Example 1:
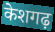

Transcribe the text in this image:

केशगढ़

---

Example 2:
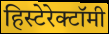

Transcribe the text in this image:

हिस्टेरेक्टॉमी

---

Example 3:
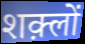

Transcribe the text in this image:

शक़्लों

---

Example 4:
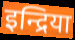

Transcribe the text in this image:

इन्द्रिया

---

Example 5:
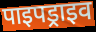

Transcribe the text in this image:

पाइपड्राइव